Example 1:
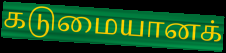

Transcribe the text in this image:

கடுமையானக்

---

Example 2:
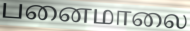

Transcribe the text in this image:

பனைமாலை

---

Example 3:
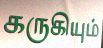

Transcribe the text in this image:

கருகியும்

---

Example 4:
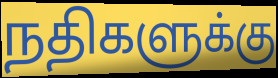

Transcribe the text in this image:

நதிகளுக்கு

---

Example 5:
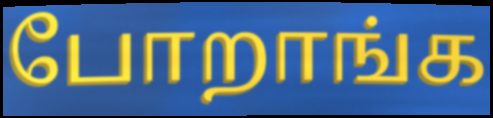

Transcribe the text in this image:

போறாங்க